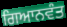
ਗਿਆਨਵੰਤ